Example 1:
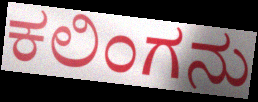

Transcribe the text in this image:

ಕಲಿಂಗನು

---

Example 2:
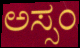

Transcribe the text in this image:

ಅಸ್ಸಂ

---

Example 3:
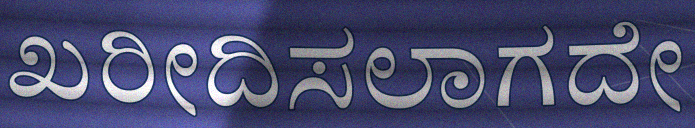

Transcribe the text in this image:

ಖರೀದಿಸಲಾಗದೇ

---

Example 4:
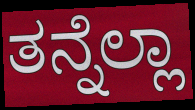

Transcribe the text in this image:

ತನ್ನೆಲ್ಲಾ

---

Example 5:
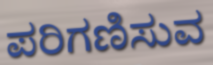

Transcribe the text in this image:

ಪರಿಗಣಿಸುವ